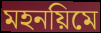
মহনয়িমে